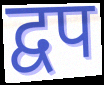
द्वप